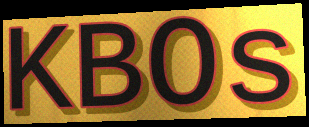
KBOs